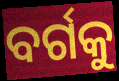
ବର୍ଗକୁ